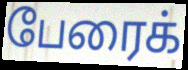
பேரைக்